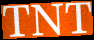
TNT